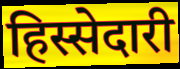
हिस्सेदारी